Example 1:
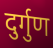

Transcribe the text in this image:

दुर्गुण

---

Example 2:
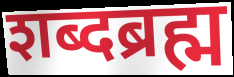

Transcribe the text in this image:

शब्दब्रह्म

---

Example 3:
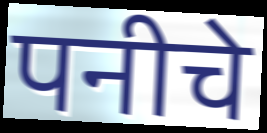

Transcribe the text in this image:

पनीचे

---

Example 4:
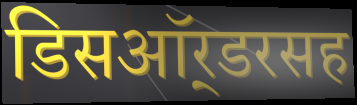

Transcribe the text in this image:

डिसऑर्डरसह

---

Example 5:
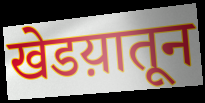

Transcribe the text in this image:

खेडय़ातून